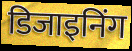
डिजाइनिंग